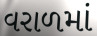
વરાળમાં